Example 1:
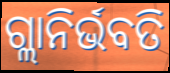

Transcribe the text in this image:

ଗ୍ଲାନିର୍ଭବତି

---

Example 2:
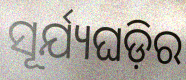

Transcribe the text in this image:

ସୂର୍ଯ୍ୟଘଡ଼ିର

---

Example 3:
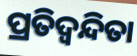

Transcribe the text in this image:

ପ୍ରତିଦ୍ଵନ୍ଦିତା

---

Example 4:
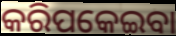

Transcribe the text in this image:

କରିପକେଇବା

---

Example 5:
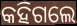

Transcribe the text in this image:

କହିଗଲେ